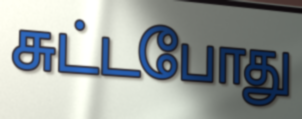
சுட்டபோது